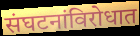
संघटनांविरोधात